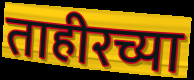
ताहीरच्या